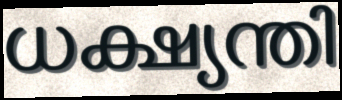
ധക്ഷ്യന്തി